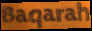
Baqarah